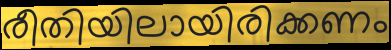
രീതിയിലായിരിക്കണം